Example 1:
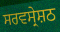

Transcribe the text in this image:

ਸਰਵਸ੍ਰੇਸ਼ਠ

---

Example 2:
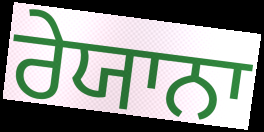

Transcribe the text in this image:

ਰੇਯਾਨਾ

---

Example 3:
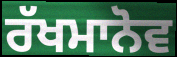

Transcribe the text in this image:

ਰੱਖਮਾਨੋਵ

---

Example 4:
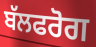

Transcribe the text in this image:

ਬੱਲਫਰੋਗ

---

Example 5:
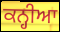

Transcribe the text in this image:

ਕਨ੍ਹੀਆ